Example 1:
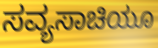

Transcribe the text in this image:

ಸವ್ಯಸಾಚಿಯೂ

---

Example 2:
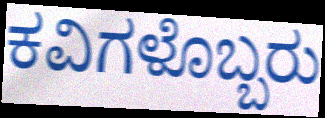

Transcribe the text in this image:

ಕವಿಗಳೊಬ್ಬರು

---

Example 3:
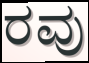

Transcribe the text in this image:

ರವು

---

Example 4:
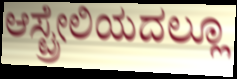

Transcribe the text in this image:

ಆಸ್ಟ್ರೇಲಿಯದಲ್ಲೂ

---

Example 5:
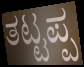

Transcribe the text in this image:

ತಟ್ಟಪ್ಪ